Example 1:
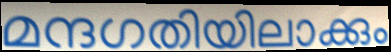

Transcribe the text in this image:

മന്ദഗതിയിലാക്കും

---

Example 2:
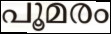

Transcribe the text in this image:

പൂമരം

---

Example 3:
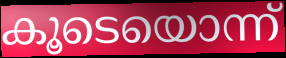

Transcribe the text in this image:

കൂടെയൊന്ന്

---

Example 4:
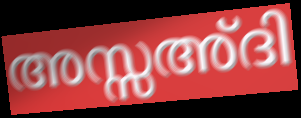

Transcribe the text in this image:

അസ്സഅ്ദി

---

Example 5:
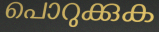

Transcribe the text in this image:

പൊറുക്കുക